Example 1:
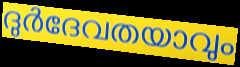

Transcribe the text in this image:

ദുർദേവതയാവും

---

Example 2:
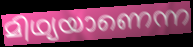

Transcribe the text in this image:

മിഥ്യയാണെന്ന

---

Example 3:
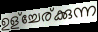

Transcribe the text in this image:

ഉള്ച്ചേര്ക്കുന്ന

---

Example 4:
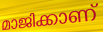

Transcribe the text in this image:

മാജിക്കാണ്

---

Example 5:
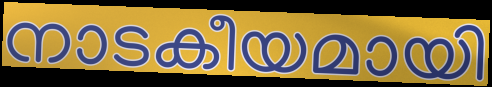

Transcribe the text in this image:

നാടകീയമായി